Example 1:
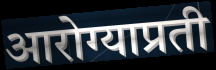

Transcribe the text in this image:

आरोग्याप्रती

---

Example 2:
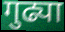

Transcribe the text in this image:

गुढ्या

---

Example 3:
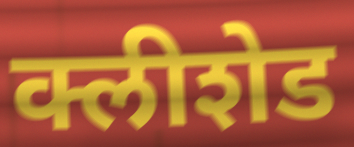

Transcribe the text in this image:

क्लीशेड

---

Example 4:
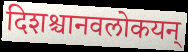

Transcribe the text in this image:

दिशश्चानवलोकयन्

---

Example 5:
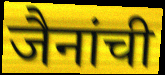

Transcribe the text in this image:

जैनांची